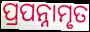
ପ୍ରପନ୍ନାମୃତ